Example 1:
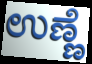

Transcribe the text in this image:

ಉಣ್ಣೆ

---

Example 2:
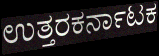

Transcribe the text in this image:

ಉತ್ತರಕರ್ನಾಟಕ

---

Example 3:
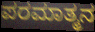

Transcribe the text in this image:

ಪರಮಾತ್ಮನ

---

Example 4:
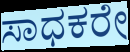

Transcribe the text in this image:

ಸಾಧಕರೇ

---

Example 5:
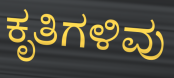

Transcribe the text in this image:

ಕೃತಿಗಳಿವು